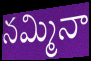
నమ్మినా